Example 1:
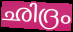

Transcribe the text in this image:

ഛിദ്രം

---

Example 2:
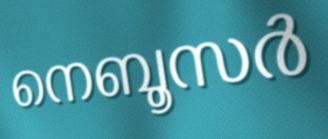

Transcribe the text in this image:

നെബൂസർ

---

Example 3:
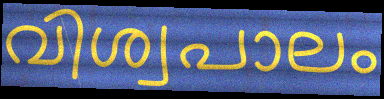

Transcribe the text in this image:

വിശ്വപാലം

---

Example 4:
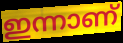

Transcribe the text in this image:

ഇന്നാണ്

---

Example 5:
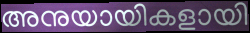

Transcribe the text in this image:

അനുയായികളായി